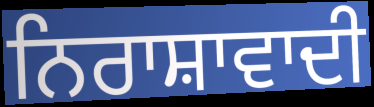
ਨਿਰਾਸ਼ਾਵਾਦੀ